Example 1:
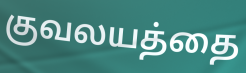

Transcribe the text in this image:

குவலயத்தை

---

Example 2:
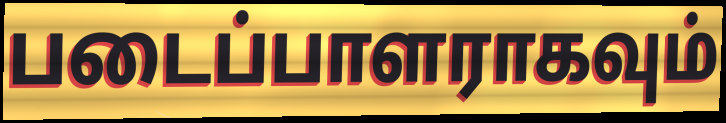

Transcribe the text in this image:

படைப்பாளராகவும்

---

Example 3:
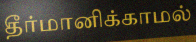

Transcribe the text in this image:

தீர்மானிக்காமல்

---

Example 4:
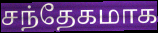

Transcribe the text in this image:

சந்தேகமாக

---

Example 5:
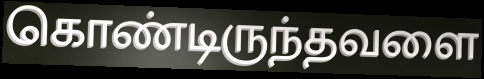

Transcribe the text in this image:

கொண்டிருந்தவளை